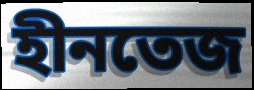
হীনতেজ